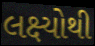
લક્ષ્યોથી